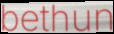
bethun